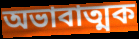
অভাবাত্মক